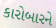
કારોબારને